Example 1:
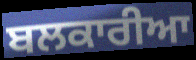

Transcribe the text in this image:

ਬਲਕਾਰੀਆ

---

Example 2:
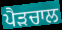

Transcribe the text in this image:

ਪੈੜਚਾਲ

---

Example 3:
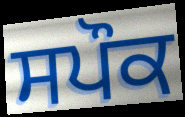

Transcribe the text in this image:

ਸਪੌਕ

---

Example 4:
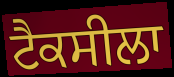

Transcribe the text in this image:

ਟੈਕਸੀਲਾ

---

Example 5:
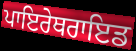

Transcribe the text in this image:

ਪਾਇਰੇਥਰਾਇਡ